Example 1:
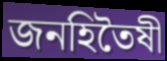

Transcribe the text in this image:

জনহিতৈষী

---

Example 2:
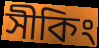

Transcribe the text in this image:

সীকিং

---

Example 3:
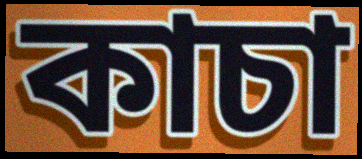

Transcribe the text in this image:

কাচা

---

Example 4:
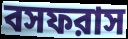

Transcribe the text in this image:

বসফরাস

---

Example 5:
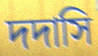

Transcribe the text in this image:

দদাসি